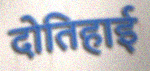
दोतिहाई